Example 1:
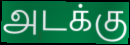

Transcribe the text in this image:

அடக்கு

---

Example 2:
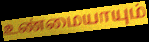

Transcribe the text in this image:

உண்மையாயும்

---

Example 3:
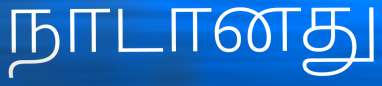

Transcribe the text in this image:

நாடானது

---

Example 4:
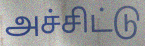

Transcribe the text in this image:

அச்சிட்டு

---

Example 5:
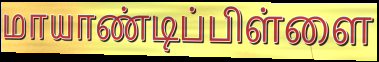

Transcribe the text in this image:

மாயாண்டிப்பிள்ளை